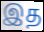
இத